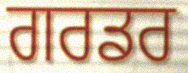
ਗਰਡਰ